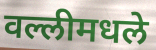
वल्लीमधले